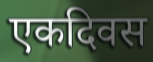
एकदिवस